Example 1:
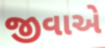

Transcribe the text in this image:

જીવાએ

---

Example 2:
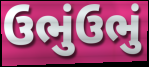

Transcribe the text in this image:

ઉભુંઉભું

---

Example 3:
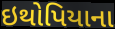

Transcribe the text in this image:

ઇથોપિયાના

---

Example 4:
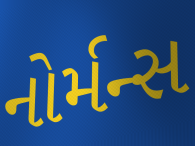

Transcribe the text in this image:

નોર્મન્સ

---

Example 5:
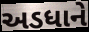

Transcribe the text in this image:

અડધાને